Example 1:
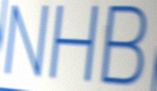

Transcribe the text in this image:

NHB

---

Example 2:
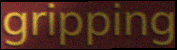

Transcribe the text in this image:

gripping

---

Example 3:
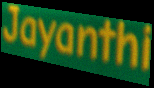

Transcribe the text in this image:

Jayanthi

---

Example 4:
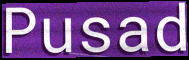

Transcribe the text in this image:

Pusad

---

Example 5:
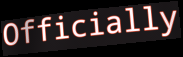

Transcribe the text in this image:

Officially